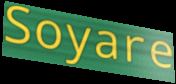
Soyare